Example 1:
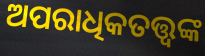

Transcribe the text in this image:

ଅପରାଧିକତତ୍ତ୍ୱଙ୍କ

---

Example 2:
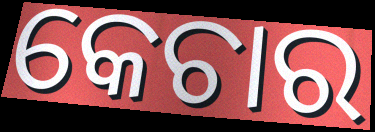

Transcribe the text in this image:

କେଚାର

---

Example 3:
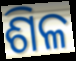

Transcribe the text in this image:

ଶିଳ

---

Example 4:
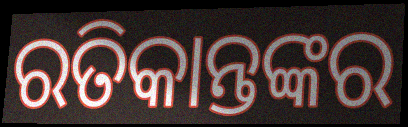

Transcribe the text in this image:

ରତିକାନ୍ତଙ୍କର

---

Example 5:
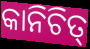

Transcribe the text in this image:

କାନିଚିତ୍